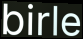
birle